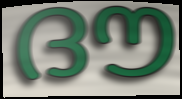
ദൗ